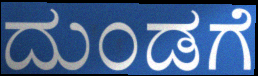
ದುಂಡಗೆ